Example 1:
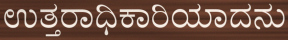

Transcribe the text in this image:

ಉತ್ತರಾಧಿಕಾರಿಯಾದನು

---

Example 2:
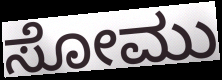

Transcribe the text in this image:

ಸೋಮು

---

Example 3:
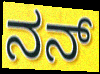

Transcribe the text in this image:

ನನ್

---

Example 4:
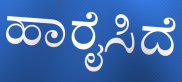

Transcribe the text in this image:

ಹಾರೈಸಿದೆ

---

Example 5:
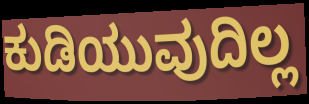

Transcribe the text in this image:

ಕುಡಿಯುವುದಿಲ್ಲ